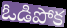
ఓడిపోక